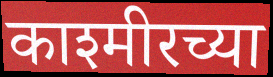
काश्मीरच्या